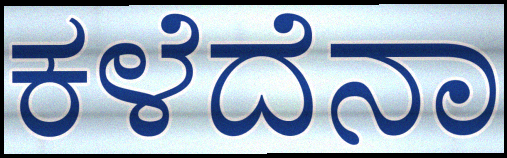
ಕಳೆದೆನಾ